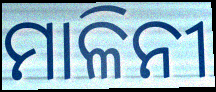
ମାଳିନୀ